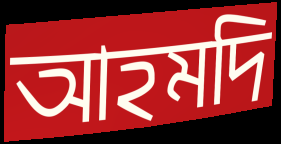
আহমদি